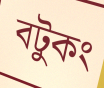
বটুকং